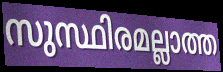
സുസ്ഥിരമല്ലാത്ത